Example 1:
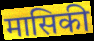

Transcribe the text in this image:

मासिकी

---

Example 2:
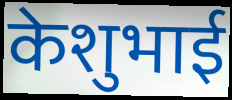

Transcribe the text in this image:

केशुभाई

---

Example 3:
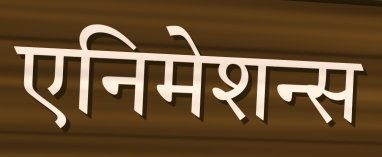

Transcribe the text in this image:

एनिमेशन्स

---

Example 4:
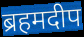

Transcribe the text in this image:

ब्रहमदीप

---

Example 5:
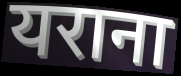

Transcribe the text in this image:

यराना